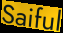
Saiful